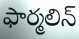
ఫార్మలిన్